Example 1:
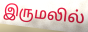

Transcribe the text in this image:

இருமலில்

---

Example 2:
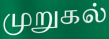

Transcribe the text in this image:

முறுகல்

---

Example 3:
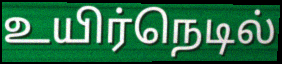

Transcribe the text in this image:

உயிர்நெடில்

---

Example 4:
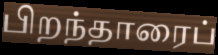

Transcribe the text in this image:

பிறந்தாரைப்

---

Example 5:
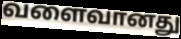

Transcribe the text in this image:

வளைவானது